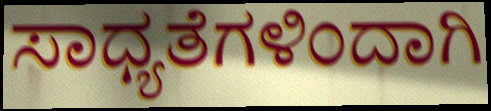
ಸಾಧ್ಯತೆಗಳಿಂದಾಗಿ